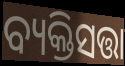
ବ୍ୟକ୍ତିସତ୍ତା